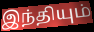
இந்தியும்